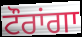
ਟੌਰਾਂਗਾ